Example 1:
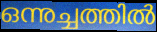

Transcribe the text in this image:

ഒന്നുച്ചത്തിൽ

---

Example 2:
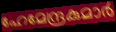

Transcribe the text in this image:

ഹേമേന്ദ്രകുമാർ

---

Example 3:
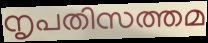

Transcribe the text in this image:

നൃപതിസത്തമ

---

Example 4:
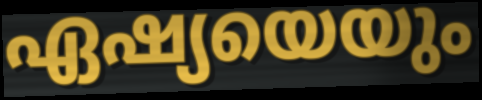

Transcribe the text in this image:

ഏഷ്യയെയും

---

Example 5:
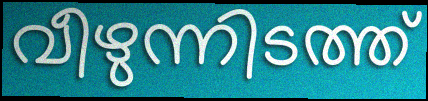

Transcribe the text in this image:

വീഴുന്നിടത്ത്